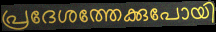
പ്രദേശത്തേക്കുപോയി